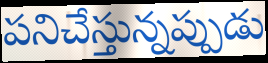
పనిచేస్తున్నప్పుడు